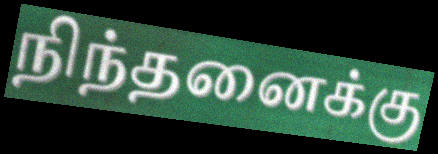
நிந்தனைக்கு